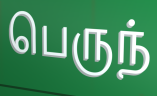
பெருந்